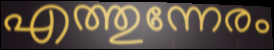
എത്തുന്നേരം